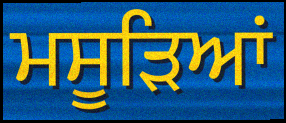
ਮਸੂੜਿਆਂ